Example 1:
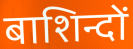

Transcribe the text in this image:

बाशिन्दों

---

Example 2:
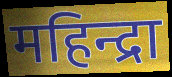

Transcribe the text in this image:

महिन्द्रा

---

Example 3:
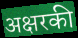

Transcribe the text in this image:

अक्षरकी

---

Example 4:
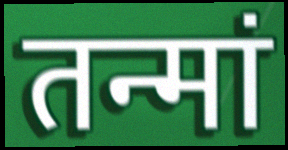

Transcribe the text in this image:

तन्मां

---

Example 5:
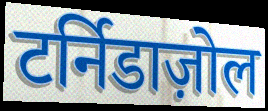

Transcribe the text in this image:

टर्निडाज़ोल